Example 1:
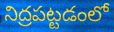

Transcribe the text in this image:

నిద్రపట్టడంలో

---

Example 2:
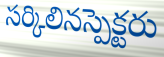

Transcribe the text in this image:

సర్కిలినస్పెక్టరు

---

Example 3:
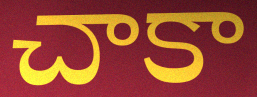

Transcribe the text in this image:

చాకా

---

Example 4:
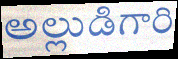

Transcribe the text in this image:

అల్లుడిగారి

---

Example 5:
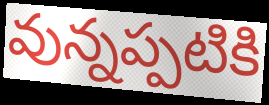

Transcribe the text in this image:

వున్నప్పటికి